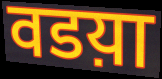
वडय़ा